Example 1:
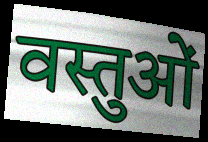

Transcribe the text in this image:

वस्तुओं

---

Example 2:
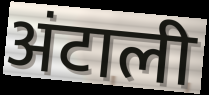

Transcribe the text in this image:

अंटाली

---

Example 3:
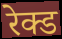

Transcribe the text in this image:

रेक्ड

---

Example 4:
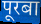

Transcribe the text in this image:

पूरबा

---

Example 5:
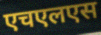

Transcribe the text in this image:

एचएलएस